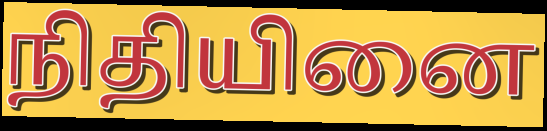
நிதியினை